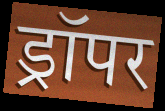
ड्रॉपर